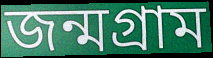
জন্মগ্রাম